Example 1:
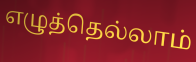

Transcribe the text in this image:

எழுத்தெல்லாம்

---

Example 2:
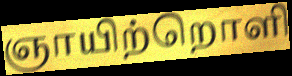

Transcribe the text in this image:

ஞாயிற்றொளி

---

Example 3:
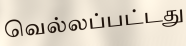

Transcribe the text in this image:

வெல்லப்பட்டது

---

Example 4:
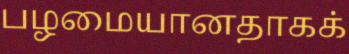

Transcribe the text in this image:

பழமையானதாகக்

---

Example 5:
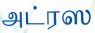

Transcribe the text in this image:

அட்ரஸ